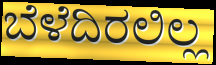
ಬೆಳೆದಿರಲಿಲ್ಲ